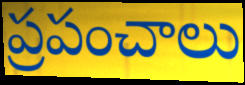
ప్రపంచాలు